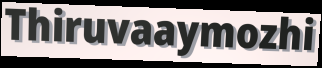
Thiruvaaymozhi